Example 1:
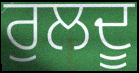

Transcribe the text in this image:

ਰੁਲਦੂ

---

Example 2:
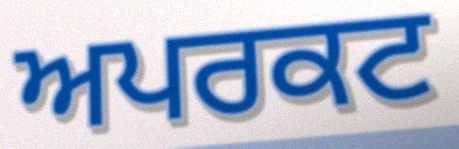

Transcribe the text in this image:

ਅਪਰਕਟ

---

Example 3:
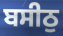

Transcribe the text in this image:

ਬਸੀਠੁ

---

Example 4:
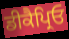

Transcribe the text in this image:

ਡੀਕੈਪ੍ਰਿਓ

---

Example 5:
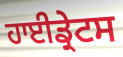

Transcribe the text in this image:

ਹਾਈਡ੍ਰੇਟਸ